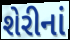
શેરીનાં